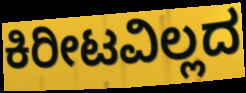
ಕಿರೀಟವಿಲ್ಲದ